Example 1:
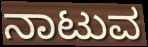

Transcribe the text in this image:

ನಾಟುವ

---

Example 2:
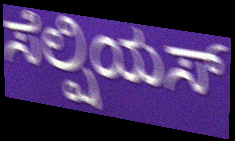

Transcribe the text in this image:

ಸೆಲ್ಷಿಯಸ್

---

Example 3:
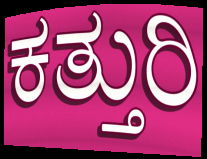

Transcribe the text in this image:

ಕತ್ತುರಿ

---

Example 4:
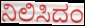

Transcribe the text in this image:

ನಿಲಿಸಿದಂ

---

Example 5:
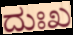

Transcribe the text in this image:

ದುಃಖ